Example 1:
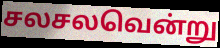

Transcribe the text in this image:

சலசலவென்று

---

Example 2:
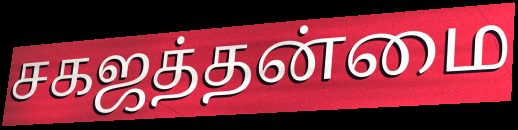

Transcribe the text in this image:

சகஜத்தன்மை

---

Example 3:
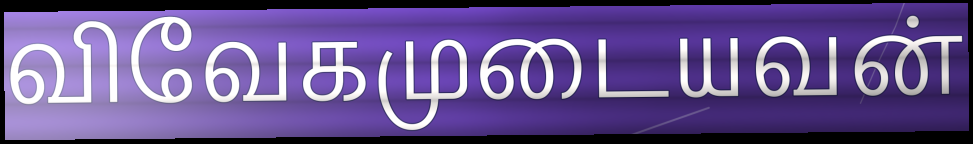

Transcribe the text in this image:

விவேகமுடையவன்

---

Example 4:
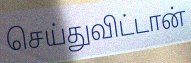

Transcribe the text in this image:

செய்துவிட்டான்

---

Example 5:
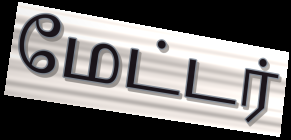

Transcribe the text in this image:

மேட்டர்